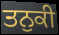
ਤਨੁਕੀ